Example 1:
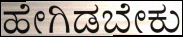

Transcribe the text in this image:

ಹೇಗಿಡಬೇಕು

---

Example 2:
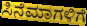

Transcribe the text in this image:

ಸಿನೆಮಾಗಳಿಗೆ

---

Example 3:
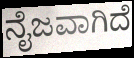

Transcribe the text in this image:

ನೈಜವಾಗಿದೆ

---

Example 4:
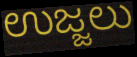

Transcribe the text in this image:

ಉಜ್ಜಲು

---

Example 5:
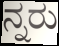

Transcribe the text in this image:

ನ್ನರು